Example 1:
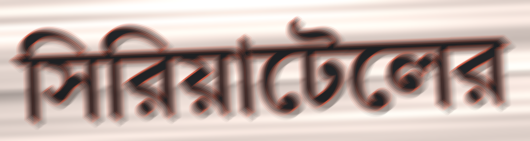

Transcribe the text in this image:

সিরিয়াটেলের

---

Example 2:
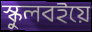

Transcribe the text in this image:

স্কুলবইয়ে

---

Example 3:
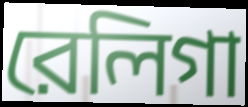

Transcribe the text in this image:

রেলিগা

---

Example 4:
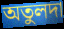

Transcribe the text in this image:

অতুলদা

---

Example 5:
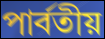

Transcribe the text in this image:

পার্বতীয়